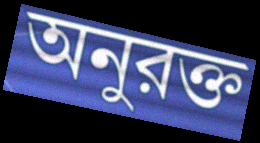
অনুরক্ত